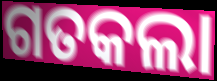
ଗତକଲା